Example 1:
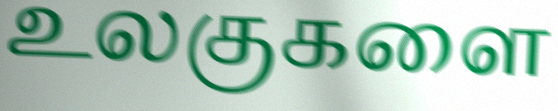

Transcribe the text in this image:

உலகுகளை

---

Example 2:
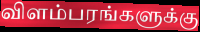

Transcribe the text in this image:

விளம்பரங்களுக்கு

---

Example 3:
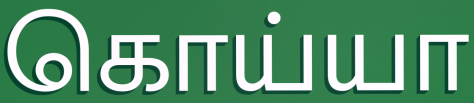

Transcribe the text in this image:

கொய்யா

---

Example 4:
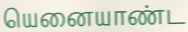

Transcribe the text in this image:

யெனையாண்ட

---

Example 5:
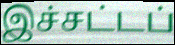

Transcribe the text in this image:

இச்சட்டப்